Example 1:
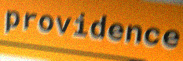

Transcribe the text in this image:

providence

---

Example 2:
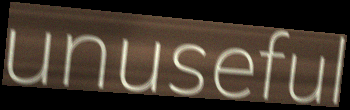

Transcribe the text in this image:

unuseful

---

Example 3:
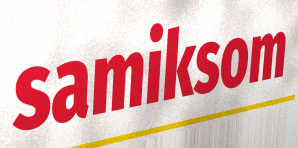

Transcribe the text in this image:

samiksom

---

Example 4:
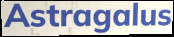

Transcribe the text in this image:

Astragalus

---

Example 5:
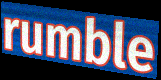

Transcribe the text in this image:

rumble